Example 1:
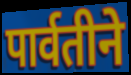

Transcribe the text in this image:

पार्वतीने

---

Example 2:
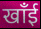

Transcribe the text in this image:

खाँई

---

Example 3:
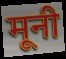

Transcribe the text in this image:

मूनी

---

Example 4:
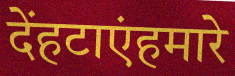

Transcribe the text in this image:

देंहटाएंहमारे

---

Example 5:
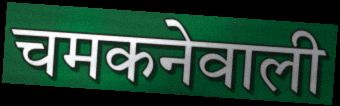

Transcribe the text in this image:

चमकनेवाली